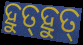
ହୁତ୍‌ହୁତ୍